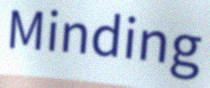
Minding